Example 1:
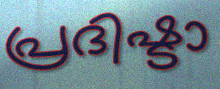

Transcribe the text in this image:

പ്രദിഷ്ടാ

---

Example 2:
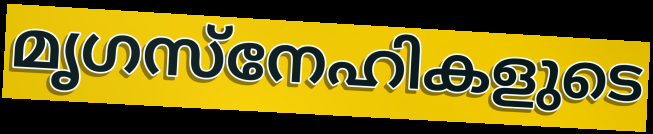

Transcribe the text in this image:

മൃഗസ്നേഹികളുടെ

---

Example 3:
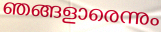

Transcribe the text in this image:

ഞങ്ങളാരെന്നും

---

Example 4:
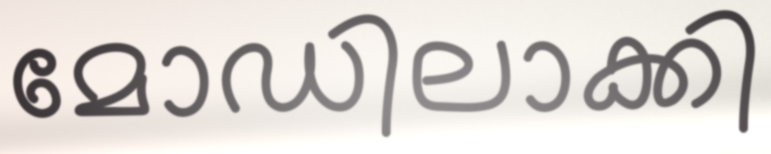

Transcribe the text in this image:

മോഡിലാക്കി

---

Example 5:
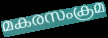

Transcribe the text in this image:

മകരസംക്രമ